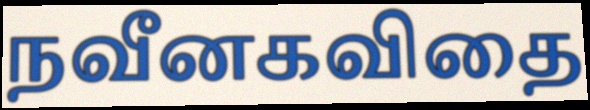
நவீனகவிதை